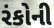
રંકોની